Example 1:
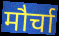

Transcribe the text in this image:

मौर्चा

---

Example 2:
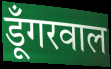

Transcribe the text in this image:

डूँगरवाल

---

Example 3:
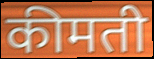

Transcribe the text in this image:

कीमती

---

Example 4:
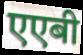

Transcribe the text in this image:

एएबी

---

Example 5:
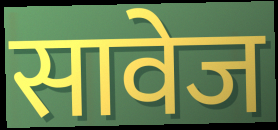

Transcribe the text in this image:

सावेज